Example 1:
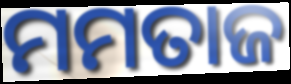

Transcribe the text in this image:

ମମତାଜ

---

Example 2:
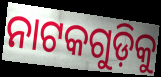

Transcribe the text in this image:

ନାଟକଗୁଡ଼ିକୁ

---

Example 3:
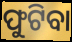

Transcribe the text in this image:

ଫୁଟିବା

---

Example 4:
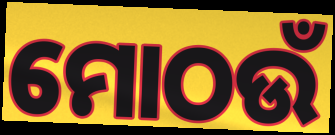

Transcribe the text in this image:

ମୋଠଉଁ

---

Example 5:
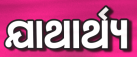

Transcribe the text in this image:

ଯାଥାର୍ଥ୍ୟ